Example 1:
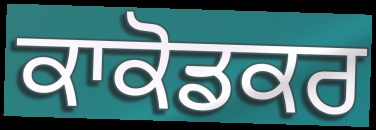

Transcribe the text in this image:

ਕਾਕੋਡਕਰ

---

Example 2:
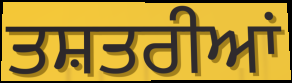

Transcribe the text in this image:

ਤਸ਼ਤਰੀਆਂ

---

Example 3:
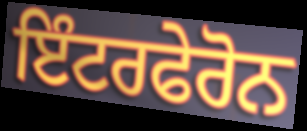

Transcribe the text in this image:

ਇੰਟਰਫੇਰੋਨ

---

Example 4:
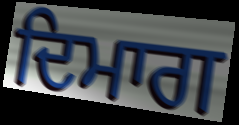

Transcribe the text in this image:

ਦਿਮਾਗ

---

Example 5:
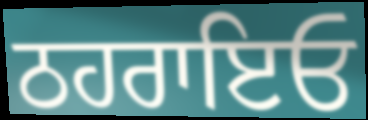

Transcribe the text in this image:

ਠਹਰਾਇਓ